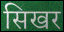
सिखर